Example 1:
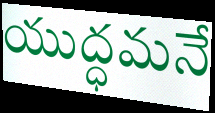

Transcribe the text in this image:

యుద్ధమనే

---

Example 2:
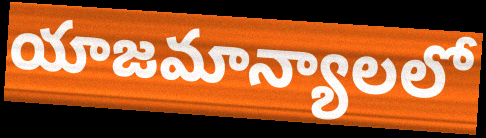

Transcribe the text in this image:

యాజమాన్యాలలో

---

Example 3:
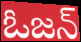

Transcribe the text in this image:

ఓజన్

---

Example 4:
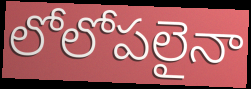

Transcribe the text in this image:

లోలోపలైనా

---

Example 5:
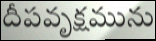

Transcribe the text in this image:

దీపవృక్షమును